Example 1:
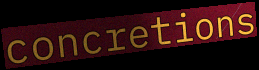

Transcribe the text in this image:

concretions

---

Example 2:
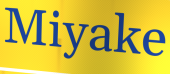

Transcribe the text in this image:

Miyake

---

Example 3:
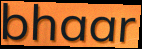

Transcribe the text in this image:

bhaar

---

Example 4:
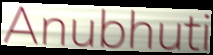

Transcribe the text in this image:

Anubhuti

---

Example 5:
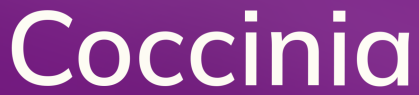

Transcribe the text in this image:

Coccinia